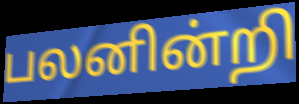
பலனின்றி